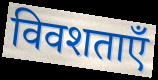
विवशताएँ